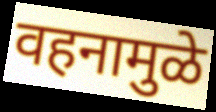
वहनामुळे